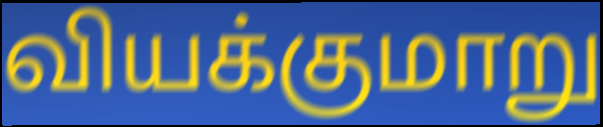
வியக்குமாறு